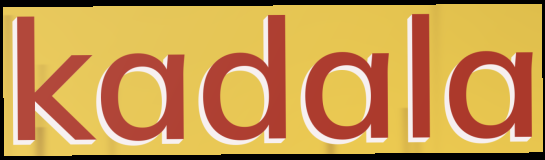
kadala